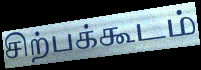
சிற்பக்கூடம்